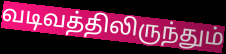
வடிவத்திலிருந்தும்